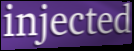
injected